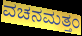
ವಚನಮತ್ತಂ